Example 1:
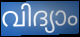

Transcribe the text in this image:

വിദ്യാം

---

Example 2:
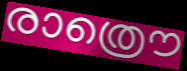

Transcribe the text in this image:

രാത്രൌ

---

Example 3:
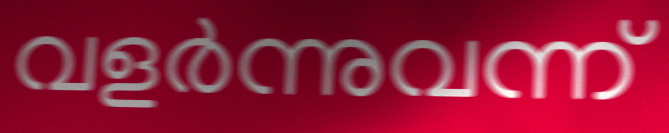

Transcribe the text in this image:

വളർന്നുവന്ന്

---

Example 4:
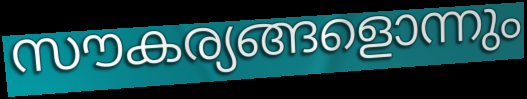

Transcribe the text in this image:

സൗകര്യങ്ങളൊന്നും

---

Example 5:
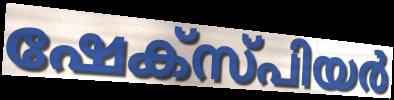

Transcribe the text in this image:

ഷേക്സ്പിയർ